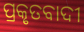
ପ୍ରକୃତବାଦୀ